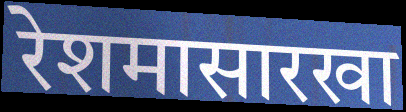
रेशमासारखा